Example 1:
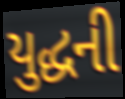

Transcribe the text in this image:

યુદ્ધની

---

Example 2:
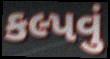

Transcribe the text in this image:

કલ્પવું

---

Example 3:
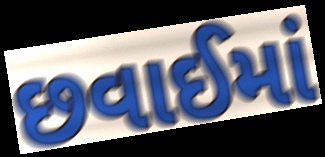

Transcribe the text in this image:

છવાઈમાં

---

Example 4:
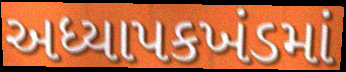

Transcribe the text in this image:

અધ્યાપકખંડમાં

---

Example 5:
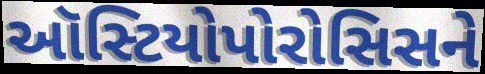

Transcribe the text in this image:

ઑસ્ટિયોપોરોસિસને